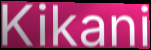
Kikani